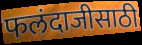
फलंदाजीसाठी